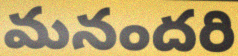
మనందరి